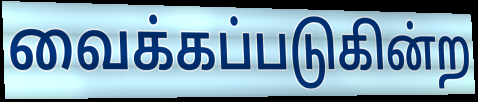
வைக்கப்படுகின்ற